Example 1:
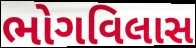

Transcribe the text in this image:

ભોગવિલાસ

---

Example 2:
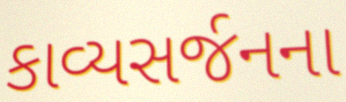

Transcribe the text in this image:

કાવ્યસર્જનના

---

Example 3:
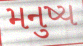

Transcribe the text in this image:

મનુષ્ય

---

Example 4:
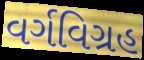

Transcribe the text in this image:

વર્ગવિગ્રહ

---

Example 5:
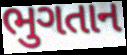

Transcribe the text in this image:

ભુગતાન